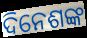
ଦିନେଶଙ୍କ